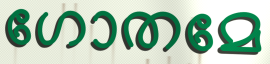
ഗോതമേ